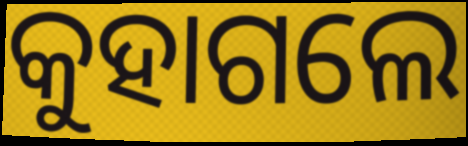
କୁହାଗଲେ